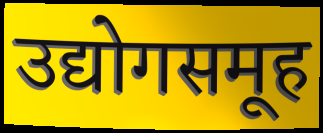
उद्योगसमूह